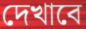
দেখাবে